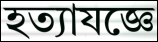
হত্যাযজ্ঞে